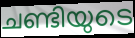
ചണ്ടിയുടെ